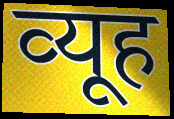
व्‍यूह